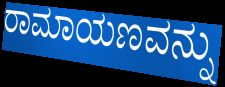
ರಾಮಾಯಣವನ್ನು